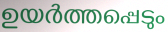
ഉയർത്തപ്പെടും